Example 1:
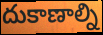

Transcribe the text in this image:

దుకాణాల్ని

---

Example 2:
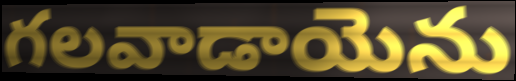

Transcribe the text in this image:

గలవాడాయెను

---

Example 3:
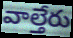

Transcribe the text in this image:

వాల్తేరు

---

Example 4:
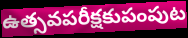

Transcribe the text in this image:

ఉత్సవపరీక్షకుపంపుట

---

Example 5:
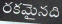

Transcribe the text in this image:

రకమైనది